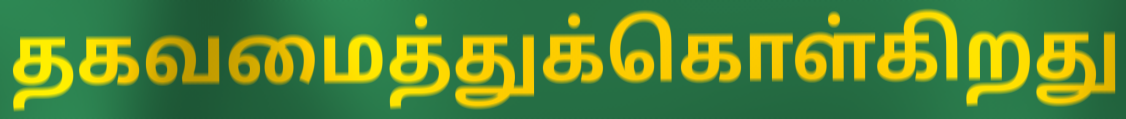
தகவமைத்துக்கொள்கிறது